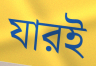
যারই